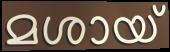
മശായ്